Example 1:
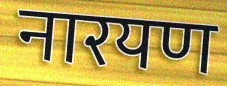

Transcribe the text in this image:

नारयण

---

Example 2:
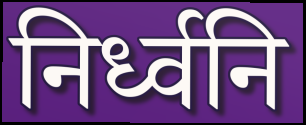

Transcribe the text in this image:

निर्ध्वनि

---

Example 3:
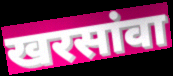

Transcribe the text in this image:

खरसांवा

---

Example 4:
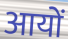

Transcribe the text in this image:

आयों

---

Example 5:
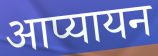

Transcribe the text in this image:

आप्यायन